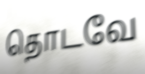
தொடவே